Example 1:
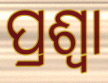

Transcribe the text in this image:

ପ୍ରଶ୍ଵା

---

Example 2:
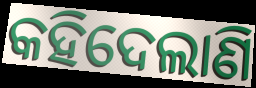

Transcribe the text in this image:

କହିଦେଲାଣି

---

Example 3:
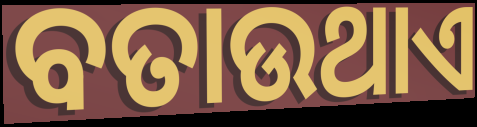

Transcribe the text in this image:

ବତାଉଥାଏ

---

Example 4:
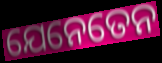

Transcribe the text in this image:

ଯେନେତେନ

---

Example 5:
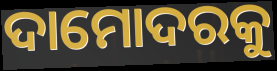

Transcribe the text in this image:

ଦାମୋଦରକୁ